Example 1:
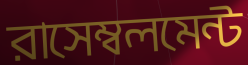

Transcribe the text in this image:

রাসেম্বলমেন্ট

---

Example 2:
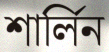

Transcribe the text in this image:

শার্লিন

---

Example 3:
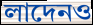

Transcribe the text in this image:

লাদেনও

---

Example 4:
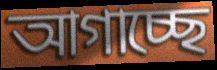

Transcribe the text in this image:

আগাচ্ছে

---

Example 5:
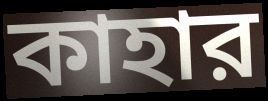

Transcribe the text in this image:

কাহার